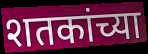
शतकांच्या